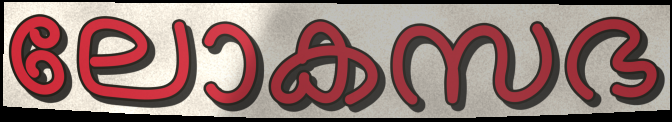
ലോകസഭ